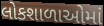
લોકશાળાઓમાં